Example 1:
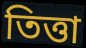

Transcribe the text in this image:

তিত্তা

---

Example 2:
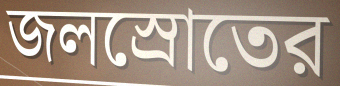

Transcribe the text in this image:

জলস্রোতের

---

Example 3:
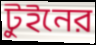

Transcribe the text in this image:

টুইনের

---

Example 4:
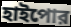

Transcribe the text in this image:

হাইপোর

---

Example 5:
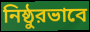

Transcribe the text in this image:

নিষ্ঠুরভাবে